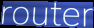
router